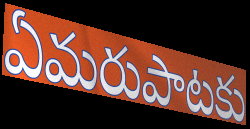
ఏమరుపాటకు